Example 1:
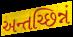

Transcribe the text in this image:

અન્તચ્છિન્નં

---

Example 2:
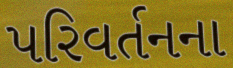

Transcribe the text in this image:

પરિવર્તનના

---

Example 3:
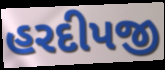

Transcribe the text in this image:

હરદીપજી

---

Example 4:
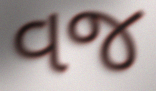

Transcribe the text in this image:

વજ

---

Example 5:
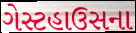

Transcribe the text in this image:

ગેસ્ટહાઉસના